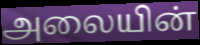
அலையின்